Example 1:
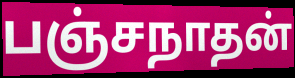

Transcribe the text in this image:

பஞ்சநாதன்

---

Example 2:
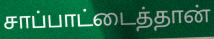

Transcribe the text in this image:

சாப்பாட்டைத்தான்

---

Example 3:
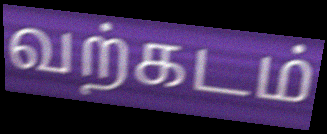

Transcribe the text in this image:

வற்கடம்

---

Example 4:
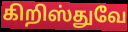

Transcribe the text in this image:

கிறிஸ்துவே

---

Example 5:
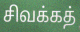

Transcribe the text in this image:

சிவக்கத்